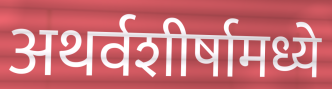
अथर्वशीर्षामध्ये